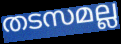
തടസമല്ല